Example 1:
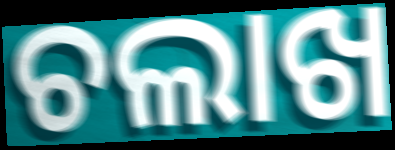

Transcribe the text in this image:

ଚଲାଖ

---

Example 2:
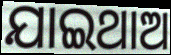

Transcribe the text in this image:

ଯାଇଥାଅ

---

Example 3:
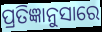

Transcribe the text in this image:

ପ୍ରତିଜ୍ଞାନୁସାରେ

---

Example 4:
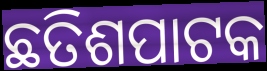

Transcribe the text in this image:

ଛତିଶପାଟକ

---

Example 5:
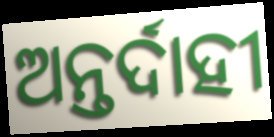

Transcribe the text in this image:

ଅନ୍ତର୍ଦାହୀ